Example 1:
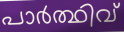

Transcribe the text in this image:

പാർത്ഥിവ്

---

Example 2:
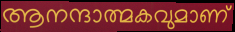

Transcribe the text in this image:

ആനന്ദാത്മകവുമാണ്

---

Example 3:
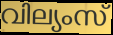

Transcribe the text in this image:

വില്യംസ്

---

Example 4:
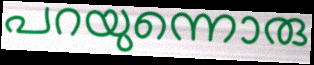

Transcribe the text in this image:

പറയുന്നൊരു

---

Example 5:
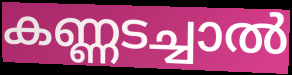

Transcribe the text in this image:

കണ്ണടച്ചാൽ